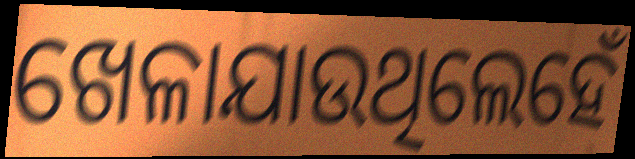
ଖେଳାଯାଉଥିଲେହେଁ